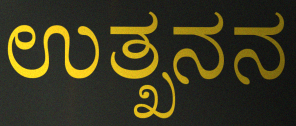
ಉತ್ಖನನ